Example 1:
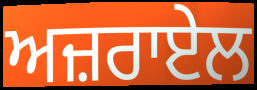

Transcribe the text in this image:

ਅਜ਼ਰਾਏਲ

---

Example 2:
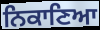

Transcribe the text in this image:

ਨਿਕਾਣਿਆ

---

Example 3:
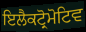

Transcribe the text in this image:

ਇਲੈਕਟ੍ਰੋਮੋਟਿਵ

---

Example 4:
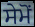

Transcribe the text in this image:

ਸੇਮੋਂ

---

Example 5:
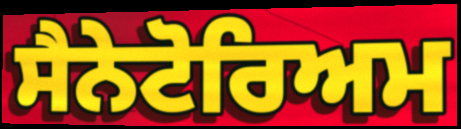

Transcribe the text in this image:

ਸੈਨੇਟੋਰਿਅਮ